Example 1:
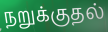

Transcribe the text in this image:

நறுக்குதல்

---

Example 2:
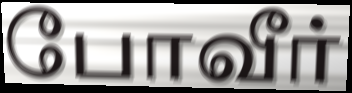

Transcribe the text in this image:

போவீர்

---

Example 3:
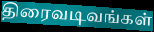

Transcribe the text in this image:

திரைவடிவங்கள்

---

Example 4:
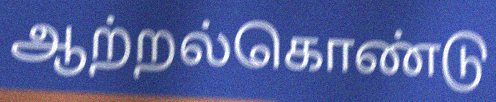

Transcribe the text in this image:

ஆற்றல்கொண்டு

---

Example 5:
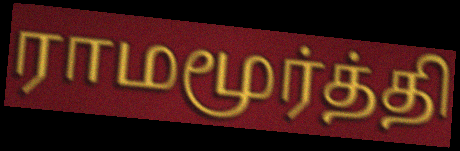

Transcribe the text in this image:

ராமமூர்த்தி